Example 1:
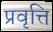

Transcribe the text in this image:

प्रवृत्ति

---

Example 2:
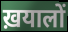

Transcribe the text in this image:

ख़यालों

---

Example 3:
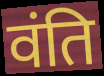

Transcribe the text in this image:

वंति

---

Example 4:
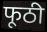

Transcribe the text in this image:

फूठी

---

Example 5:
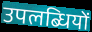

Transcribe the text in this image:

उपलब्धियों